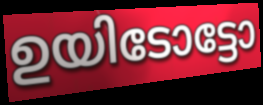
ഉയിടോട്ടോ